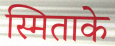
स्मिताके